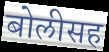
बोलीसह